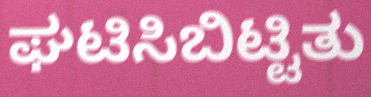
ಘಟಿಸಿಬಿಟ್ಟಿತು